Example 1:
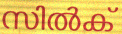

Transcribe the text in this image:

സിൽക്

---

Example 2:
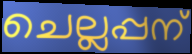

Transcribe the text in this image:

ചെല്ലപ്പന്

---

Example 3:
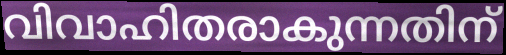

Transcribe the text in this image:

വിവാഹിതരാകുന്നതിന്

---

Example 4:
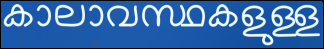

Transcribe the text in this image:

കാലാവസ്ഥകളുള്ള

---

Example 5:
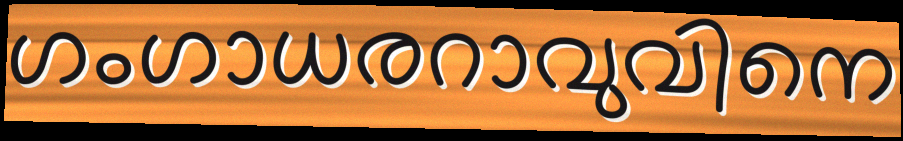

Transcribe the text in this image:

ഗംഗാധരറാവുവിനെ